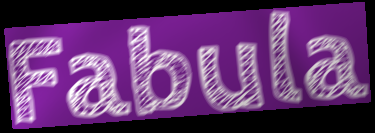
Fabula